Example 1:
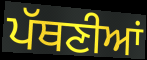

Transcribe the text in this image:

ਪੱਥਣੀਆਂ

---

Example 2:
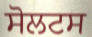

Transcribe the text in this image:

ਸੋਲਟਸ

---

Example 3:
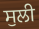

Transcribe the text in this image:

ਸੁਲੀ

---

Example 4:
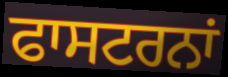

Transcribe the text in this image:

ਫਾਸਟਰਨਾਂ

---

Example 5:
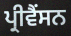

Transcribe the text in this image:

ਪ੍ਰੀਵੈਂਸਨ